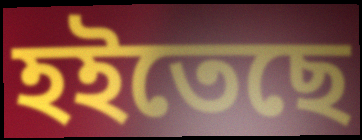
হইতেছে